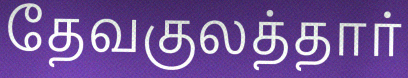
தேவகுலத்தார்